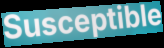
Susceptible